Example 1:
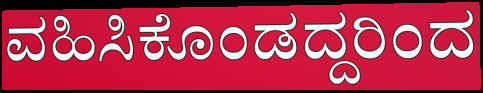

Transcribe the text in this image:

ವಹಿಸಿಕೊಂಡದ್ದರಿಂದ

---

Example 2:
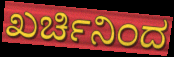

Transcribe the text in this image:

ಖರ್ಚಿನಿಂದ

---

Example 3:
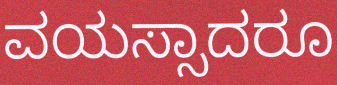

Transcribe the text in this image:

ವಯಸ್ಸಾದರೂ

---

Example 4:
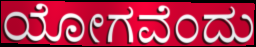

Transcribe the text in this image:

ಯೋಗವೆಂದು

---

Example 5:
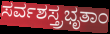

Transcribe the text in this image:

ಸರ್ವಶಸ್ತ್ರಭೃತಾಂ